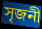
সৃজনী